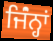
ਜਿੰਂਨ੍ਹਾਂ